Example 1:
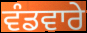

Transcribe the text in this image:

ਵੰਡਵਾਰੇ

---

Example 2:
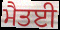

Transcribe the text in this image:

ਮੈਤਈ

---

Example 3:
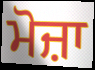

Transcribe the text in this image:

ਮੋਜ਼ਾ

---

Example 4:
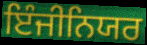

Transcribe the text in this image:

ਇੰਜੀਨਿਯਰ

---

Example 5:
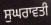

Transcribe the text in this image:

ਸੁਘਰਾਵਤੀ